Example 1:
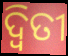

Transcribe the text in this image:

ଦ୍ୱିତୀ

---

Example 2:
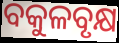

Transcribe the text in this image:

ବକୁଳବୃକ୍ଷ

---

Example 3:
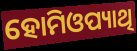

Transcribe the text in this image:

ହୋମିଓପ୍ୟାଥି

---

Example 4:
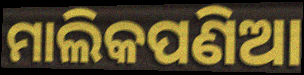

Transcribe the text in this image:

ମାଲିକପଣିଆ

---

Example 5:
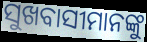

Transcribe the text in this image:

ସୁଖବାସୀମାନଙ୍କୁ